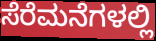
ಸೆರೆಮನೆಗಳಲ್ಲಿ